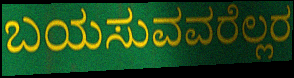
ಬಯಸುವವರೆಲ್ಲರ